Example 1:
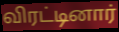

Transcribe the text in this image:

விரட்டினார்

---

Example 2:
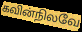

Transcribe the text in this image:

கவின்நிலவே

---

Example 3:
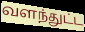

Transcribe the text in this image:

வளந்துட்ட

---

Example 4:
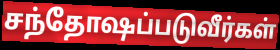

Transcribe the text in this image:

சந்தோஷப்படுவீர்கள்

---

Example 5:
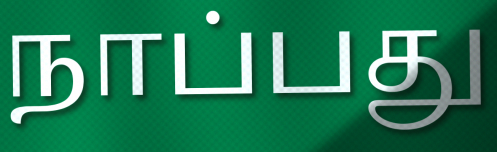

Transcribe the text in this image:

நாப்பது